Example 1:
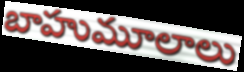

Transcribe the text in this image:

బాహుమూలాలు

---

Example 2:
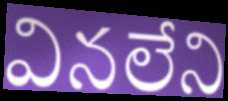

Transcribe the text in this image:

వినలేని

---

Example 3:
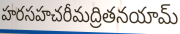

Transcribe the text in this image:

హరసహచరీమద్రితనయామ్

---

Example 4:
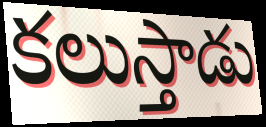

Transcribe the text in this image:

కలుస్తాడు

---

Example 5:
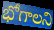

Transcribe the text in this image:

భోగాలని